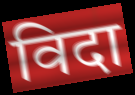
विदा